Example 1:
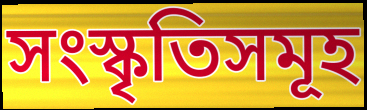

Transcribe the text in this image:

সংস্কৃতিসমূহ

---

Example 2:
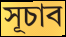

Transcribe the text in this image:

সূচাব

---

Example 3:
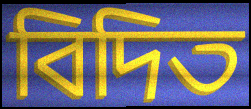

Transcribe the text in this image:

বিদিত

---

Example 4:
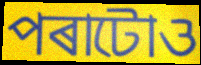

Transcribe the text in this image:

পৰাটোও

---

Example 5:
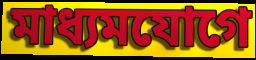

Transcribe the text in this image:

মাধ্যমযোগে